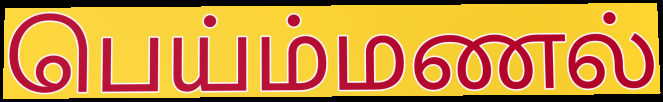
பெய்ம்மணல்